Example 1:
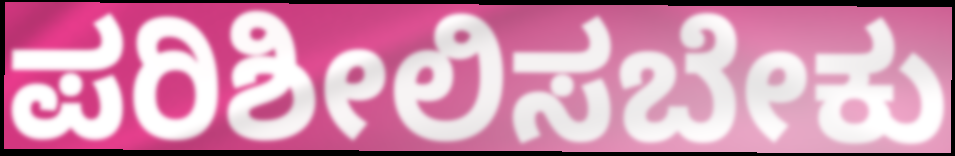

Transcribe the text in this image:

ಪರಿಶೀಲಿಸಬೇಕು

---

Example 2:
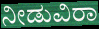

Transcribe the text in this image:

ನೀಡುವಿರಾ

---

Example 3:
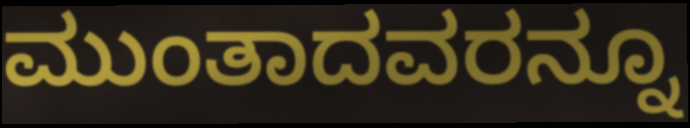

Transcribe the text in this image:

ಮುಂತಾದವರನ್ನೂ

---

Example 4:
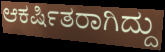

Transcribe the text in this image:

ಆಕರ್ಷಿತರಾಗಿದ್ದು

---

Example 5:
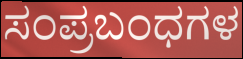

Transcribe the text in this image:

ಸಂಪ್ರಬಂಧಗಳ